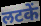
लटकें